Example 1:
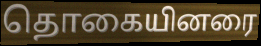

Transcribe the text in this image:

தொகையினரை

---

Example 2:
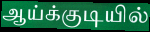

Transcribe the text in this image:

ஆய்க்குடியில்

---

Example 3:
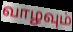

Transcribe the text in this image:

வாழவும்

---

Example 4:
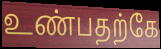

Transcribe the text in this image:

உண்பதற்கே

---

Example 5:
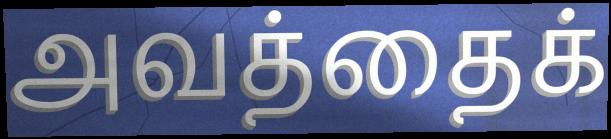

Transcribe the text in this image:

அவத்தைக்